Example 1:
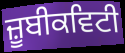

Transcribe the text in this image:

ਜ਼ੂਬੀਕਵਿਟੀ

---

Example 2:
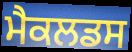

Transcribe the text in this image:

ਮੈਕਲਡਸ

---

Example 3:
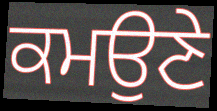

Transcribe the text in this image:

ਕਮਉਣੇ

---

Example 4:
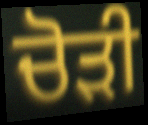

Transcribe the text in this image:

ਚੋੜੀ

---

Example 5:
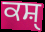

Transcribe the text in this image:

ਕਸ਼ੑ